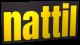
nattil